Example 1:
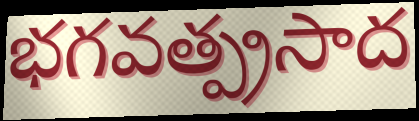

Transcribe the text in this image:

భగవత్ప్రసాద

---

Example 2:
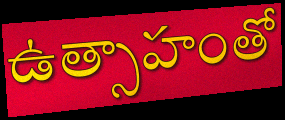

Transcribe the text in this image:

ఉత్సాహంతో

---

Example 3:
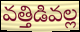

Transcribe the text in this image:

వత్తిడివల్ల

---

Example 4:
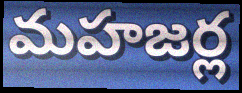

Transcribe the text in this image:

మహజర్ల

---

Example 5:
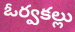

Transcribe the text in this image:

ఓర్వకల్లు